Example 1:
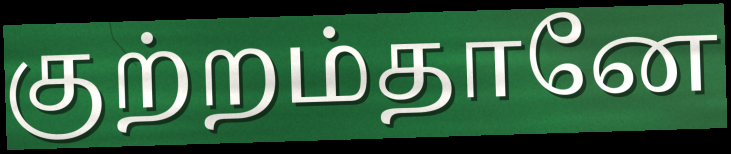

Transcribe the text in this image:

குற்றம்தானே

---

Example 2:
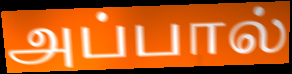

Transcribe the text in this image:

அப்பால்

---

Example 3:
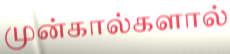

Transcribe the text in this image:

முன்கால்களால்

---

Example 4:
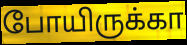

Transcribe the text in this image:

போயிருக்கா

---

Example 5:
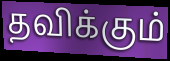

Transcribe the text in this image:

தவிக்கும்